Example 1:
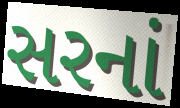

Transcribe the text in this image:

સરનાં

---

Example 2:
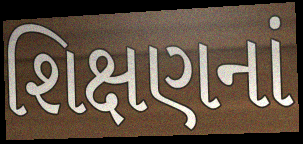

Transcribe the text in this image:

શિક્ષણનાં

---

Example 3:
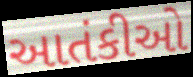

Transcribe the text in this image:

આતંકીઓ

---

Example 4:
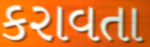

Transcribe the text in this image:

કરાવતા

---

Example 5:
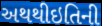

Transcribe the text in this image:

અથથીઇતિની